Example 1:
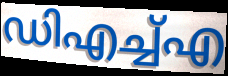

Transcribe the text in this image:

ഡിഎച്ച്എ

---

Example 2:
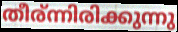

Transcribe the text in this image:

തീര്ന്നിരിക്കുന്നു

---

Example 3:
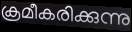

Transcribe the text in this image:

ക്രമീകരിക്കുന്നു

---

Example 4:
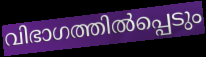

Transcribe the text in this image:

വിഭാഗത്തിൽപ്പെടും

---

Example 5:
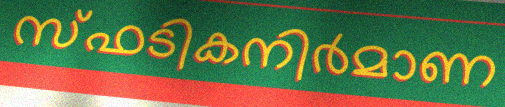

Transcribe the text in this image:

സ്ഫടികനിർമാണ